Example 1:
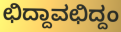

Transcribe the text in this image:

ಛಿದ್ದಾವಛಿದ್ದಂ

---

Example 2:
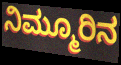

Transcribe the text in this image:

ನಿಮ್ಮೂರಿನ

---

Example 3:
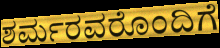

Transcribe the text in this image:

ಶರ್ಮರವರೊಂದಿಗೆ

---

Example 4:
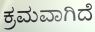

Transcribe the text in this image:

ಕ್ರಮವಾಗಿದೆ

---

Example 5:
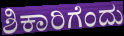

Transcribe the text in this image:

ಶಿಕಾರಿಗೆಂದು